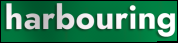
harbouring